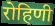
रोहिणी